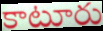
కాటూరు